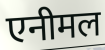
एनीमल